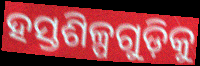
ହସ୍ତଶିଳ୍ପଗୁଡ଼ିକୁ